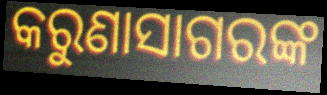
କରୁଣାସାଗରଙ୍କ